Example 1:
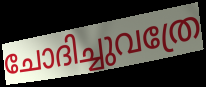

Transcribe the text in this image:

ചോദിച്ചുവത്രേ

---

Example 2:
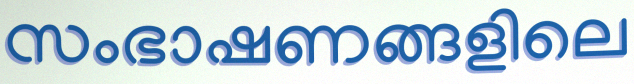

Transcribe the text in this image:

സംഭാഷണങ്ങളിലെ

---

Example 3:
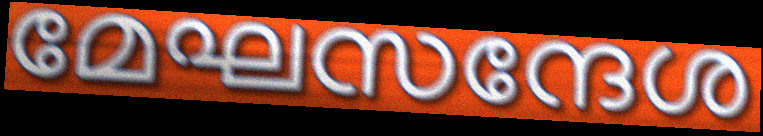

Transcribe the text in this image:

മേഘസന്ദേശ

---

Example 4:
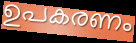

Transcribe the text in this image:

ഉപകരണം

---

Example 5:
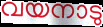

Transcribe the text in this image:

വയനാടു